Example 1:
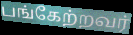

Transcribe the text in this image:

பங்கேற்றவர்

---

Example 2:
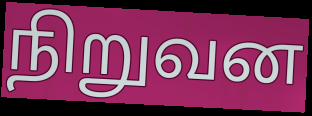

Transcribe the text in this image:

நிறுவன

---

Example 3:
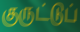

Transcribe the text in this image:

குருட்டுப்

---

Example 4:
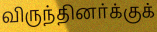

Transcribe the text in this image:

விருந்தினர்க்குக்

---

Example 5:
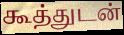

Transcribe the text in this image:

கூத்துடன்